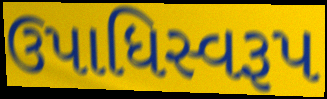
ઉપાધિસ્વરૂપ